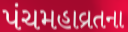
પંચમહાવ્રતના